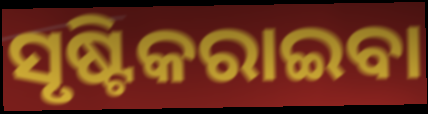
ସୃଷ୍ଟିକରାଇବା